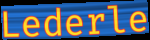
Lederle